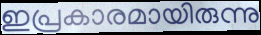
ഇപ്രകാരമായിരുന്നു